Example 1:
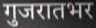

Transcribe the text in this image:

गुजरातभर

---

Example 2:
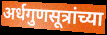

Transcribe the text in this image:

अर्धगुणसूत्रांच्या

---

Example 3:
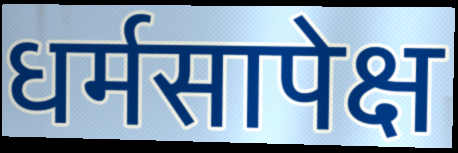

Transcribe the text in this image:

धर्मसापेक्ष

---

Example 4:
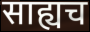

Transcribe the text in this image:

साह्यच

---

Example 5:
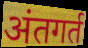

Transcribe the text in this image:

अंतगर्त